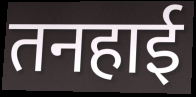
तनहाई